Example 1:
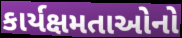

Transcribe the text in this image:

કાર્યક્ષમતાઓનો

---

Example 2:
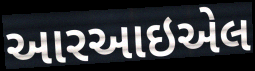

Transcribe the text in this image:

આરઆઇએલ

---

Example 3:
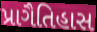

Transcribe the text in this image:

પ્રાગૈતિહાસ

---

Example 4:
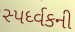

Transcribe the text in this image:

સ્પર્ધ્વકની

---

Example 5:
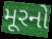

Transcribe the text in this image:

મૂરનો